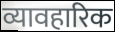
व्‍यावहारिक